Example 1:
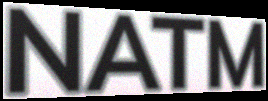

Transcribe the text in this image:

NATM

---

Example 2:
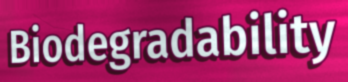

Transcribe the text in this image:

Biodegradability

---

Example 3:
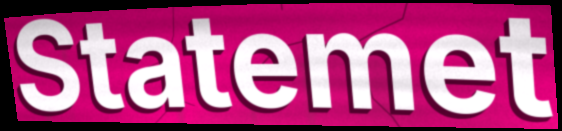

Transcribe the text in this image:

Statemet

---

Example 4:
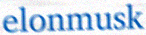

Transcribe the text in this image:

elonmusk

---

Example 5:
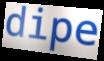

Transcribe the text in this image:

dipe